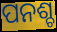
ପନଶ୍ଚ